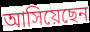
আসিয়েছেন